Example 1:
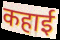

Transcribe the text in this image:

कहाई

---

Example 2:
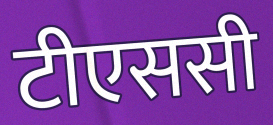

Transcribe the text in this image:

टीएससी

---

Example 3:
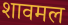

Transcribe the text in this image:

शावमल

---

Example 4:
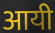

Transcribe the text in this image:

आयी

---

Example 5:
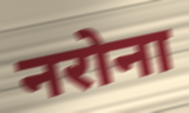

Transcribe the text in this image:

नरोना